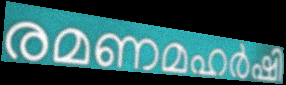
രമണമഹർഷി